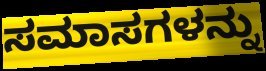
ಸಮಾಸಗಳನ್ನು